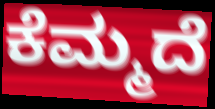
ಕೆಮ್ಮದೆ